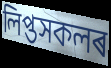
লিপ্তসকলৰ